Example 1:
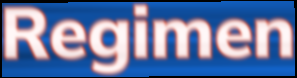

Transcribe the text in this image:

Regimen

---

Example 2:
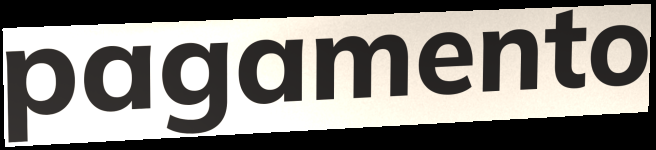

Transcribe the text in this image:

pagamento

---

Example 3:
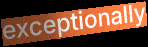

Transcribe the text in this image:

exceptionally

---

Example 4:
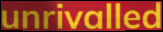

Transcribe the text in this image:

unrivalled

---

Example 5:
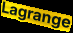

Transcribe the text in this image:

Lagrange